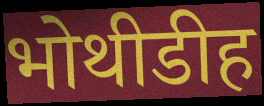
भोथीडीह